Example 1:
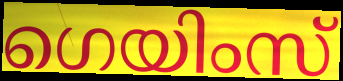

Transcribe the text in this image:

ഗെയിംസ്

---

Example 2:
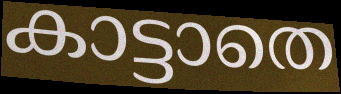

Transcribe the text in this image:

കാട്ടാതെ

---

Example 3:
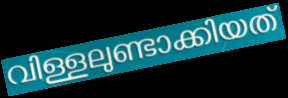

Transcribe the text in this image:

വിള്ളലുണ്ടാക്കിയത്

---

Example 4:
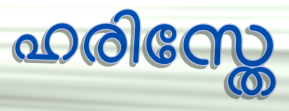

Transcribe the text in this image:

ഹരിസ്തേ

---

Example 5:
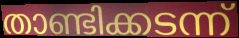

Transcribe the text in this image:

താണ്ടിക്കടന്ന്